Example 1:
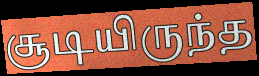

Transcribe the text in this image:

சூடியிருந்த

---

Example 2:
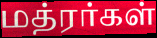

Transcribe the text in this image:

மத்ரர்கள்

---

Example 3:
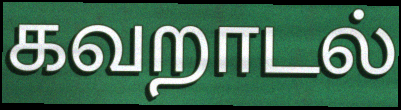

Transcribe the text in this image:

கவறாடல்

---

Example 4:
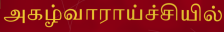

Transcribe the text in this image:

அகழ்வாராய்ச்சியில்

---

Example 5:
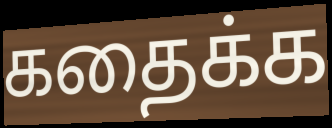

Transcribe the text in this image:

கதைக்க